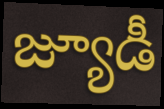
జ్యూడీ